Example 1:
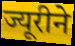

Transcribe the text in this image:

ज्यूरीने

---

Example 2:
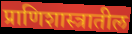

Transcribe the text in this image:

प्राणिशास्त्रातील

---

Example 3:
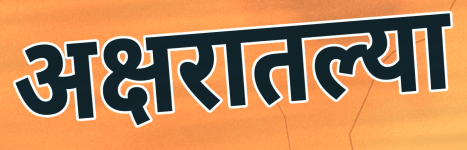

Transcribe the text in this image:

अक्षरातल्या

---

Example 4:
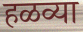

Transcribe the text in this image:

हळव्या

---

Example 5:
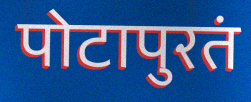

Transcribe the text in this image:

पोटापुरतं